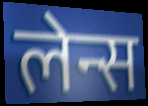
लेन्स